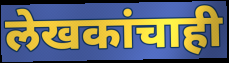
लेखकांचाही